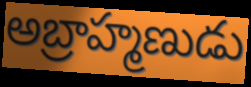
అబ్రాహ్మణుడు